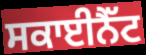
ਸਕਾਈਨੈੱਟ